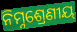
ନିମ୍ନଶ୍ରେଣୀୟ